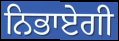
ਨਿਭਾਏਗੀ